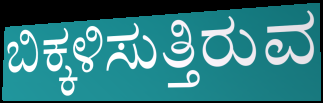
ಬಿಕ್ಕಳಿಸುತ್ತಿರುವ